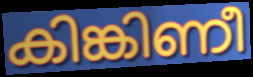
കിങ്കിണീ